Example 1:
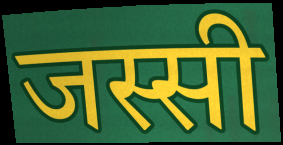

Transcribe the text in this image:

जस्सी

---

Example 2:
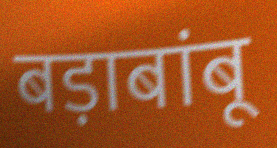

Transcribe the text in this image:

बड़ाबांबू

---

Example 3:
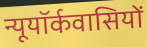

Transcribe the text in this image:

न्यूयॉर्कवासियों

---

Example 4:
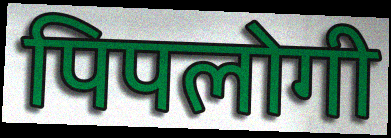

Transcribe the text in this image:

पिपलोगी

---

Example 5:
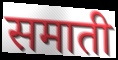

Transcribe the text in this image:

समाती